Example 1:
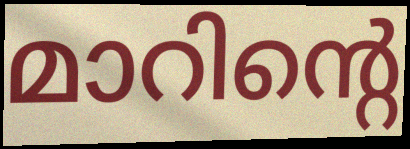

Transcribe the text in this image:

മാറിന്റെ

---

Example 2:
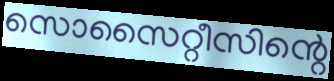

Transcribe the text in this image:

സൊസൈറ്റീസിന്റെ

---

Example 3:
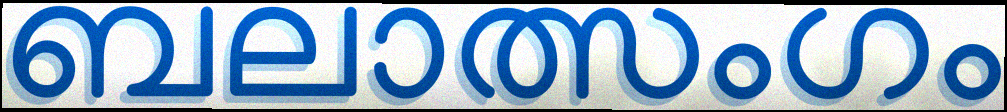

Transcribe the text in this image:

ബലാത്സംഗം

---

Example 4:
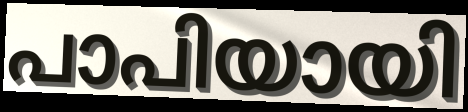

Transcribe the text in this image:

പാപിയായി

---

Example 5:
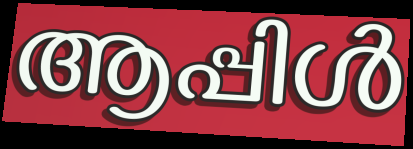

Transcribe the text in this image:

ആപ്പിൾ